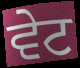
ਵੇਟ